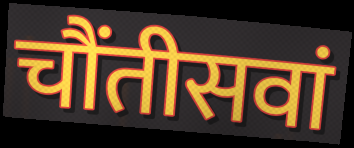
चौंतीसवां